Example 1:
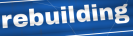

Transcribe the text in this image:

rebuilding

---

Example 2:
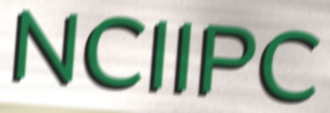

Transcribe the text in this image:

NCIIPC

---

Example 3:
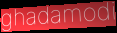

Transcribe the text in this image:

ghadamodi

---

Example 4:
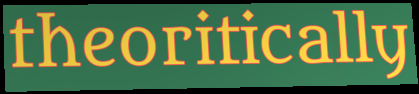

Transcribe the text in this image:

theoritically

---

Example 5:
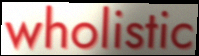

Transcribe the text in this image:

wholistic